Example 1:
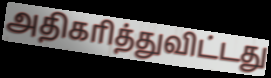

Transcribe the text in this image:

அதிகரித்துவிட்டது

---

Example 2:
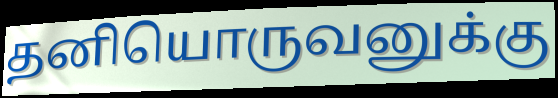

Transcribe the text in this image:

தனியொருவனுக்கு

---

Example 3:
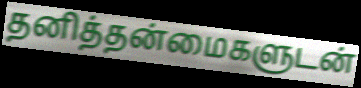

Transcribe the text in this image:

தனித்தன்மைகளுடன்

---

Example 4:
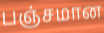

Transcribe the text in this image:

பஞ்சமான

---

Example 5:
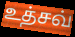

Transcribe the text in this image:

உத்சவ்